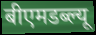
बीएमडब्ल्यू